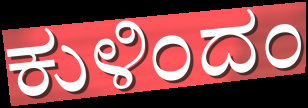
ಕುಳಿಂದಂ